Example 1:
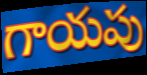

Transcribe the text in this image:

గాయపు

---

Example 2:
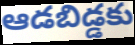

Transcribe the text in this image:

ఆడబిడ్డకు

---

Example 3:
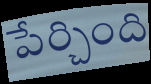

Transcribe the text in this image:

పేర్చింది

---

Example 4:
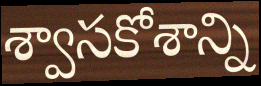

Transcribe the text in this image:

శ్వాసకోశాన్ని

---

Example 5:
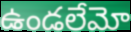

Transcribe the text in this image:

ఉండలేమో